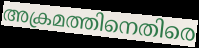
അക്രമത്തിനെതിരെ